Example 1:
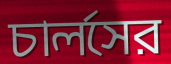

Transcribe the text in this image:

চার্লসের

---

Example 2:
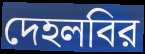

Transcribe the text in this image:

দেহলবির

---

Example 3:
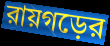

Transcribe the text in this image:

রায়গড়ের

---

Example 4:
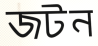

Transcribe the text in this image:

জটন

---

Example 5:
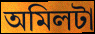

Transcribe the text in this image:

অমিলটা